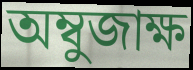
অম্বুজাক্ষ